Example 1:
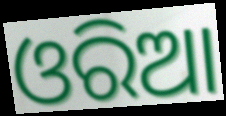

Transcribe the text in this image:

ଓରିଆ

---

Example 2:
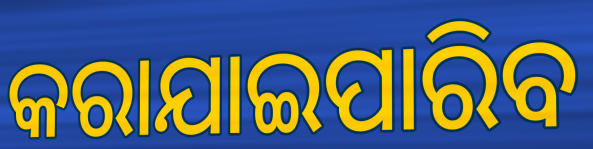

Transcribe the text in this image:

କରାଯାଇପାରିବ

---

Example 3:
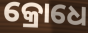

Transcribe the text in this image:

କ୍ରୋଧେ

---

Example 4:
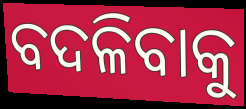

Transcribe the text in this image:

ବଦଳିବାକୁ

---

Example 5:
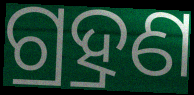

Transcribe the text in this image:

ଗ୍ର୍ରହଣ